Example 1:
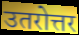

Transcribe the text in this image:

उतरोत्तर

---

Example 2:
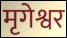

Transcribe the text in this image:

मृगेश्वर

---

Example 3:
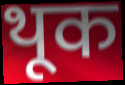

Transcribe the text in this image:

थूक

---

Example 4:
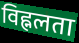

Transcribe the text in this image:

विह्नलता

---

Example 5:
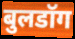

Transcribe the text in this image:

बुलडॉग